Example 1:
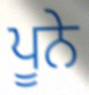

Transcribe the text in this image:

ਪੂਨੇ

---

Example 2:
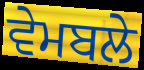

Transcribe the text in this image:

ਵੇਮਬਲੇ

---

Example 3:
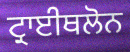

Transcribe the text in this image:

ਟ੍ਰਾਈਥਲੋਨ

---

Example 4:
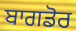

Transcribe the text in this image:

ਬਾਗਡੋਰ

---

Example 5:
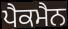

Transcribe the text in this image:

ਪੈਕਮੈਨ